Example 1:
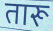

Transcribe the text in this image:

तारू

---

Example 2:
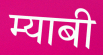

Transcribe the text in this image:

म्याबी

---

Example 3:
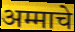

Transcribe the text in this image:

अम्माचे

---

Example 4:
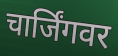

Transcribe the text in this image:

चार्जिंगवर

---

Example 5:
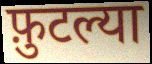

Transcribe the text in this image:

फ़ुटल्या